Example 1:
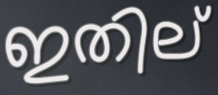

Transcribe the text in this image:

ഇതില്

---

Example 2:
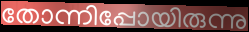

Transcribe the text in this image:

തോന്നിപ്പോയിരുന്നു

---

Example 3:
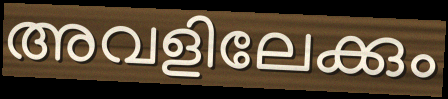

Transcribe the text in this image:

അവളിലേക്കും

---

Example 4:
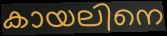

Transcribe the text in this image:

കായലിനെ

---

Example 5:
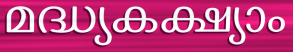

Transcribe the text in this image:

മദ്ധ്യകക്ഷ്യാം